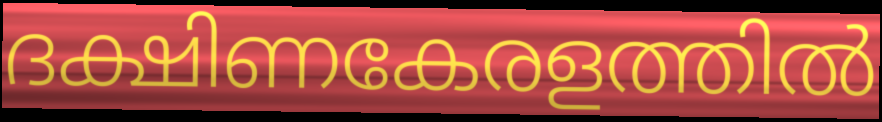
ദക്ഷിണകേരളത്തിൽ